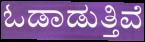
ಓಡಾಡುತ್ತಿವೆ